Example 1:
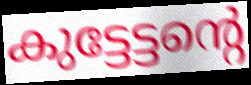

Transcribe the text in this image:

കുട്ടേട്ടന്റെ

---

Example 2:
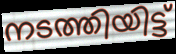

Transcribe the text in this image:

നടത്തിയിട്ട്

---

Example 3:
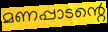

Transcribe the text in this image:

മണപ്പാടന്റെ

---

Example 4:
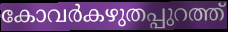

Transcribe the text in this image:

കോവർകഴുതപ്പുറത്ത്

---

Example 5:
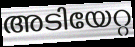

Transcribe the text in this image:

അടിയേറ്റ